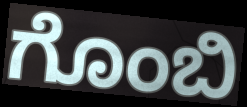
ಗೊಂಬಿ